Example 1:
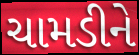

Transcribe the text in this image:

ચામડીને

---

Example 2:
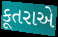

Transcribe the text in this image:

કૂતરાએ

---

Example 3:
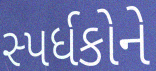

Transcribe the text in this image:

સ્પર્ધકોને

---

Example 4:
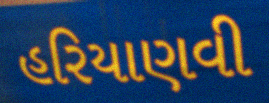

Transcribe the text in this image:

હરિયાણવી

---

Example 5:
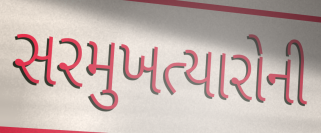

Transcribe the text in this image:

સરમુખત્યારોની